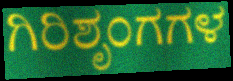
ಗಿರಿಶೃಂಗಗಳ